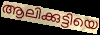
ആലിക്കുട്ടിയെ